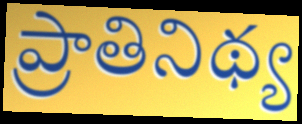
ప్రాతినిథ్య